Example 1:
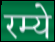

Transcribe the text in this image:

रम्ये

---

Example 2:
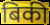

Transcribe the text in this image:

बिकी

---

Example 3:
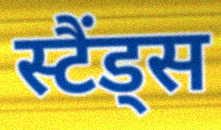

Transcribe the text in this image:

स्टैंड्स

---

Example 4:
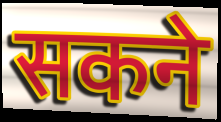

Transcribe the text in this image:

सकने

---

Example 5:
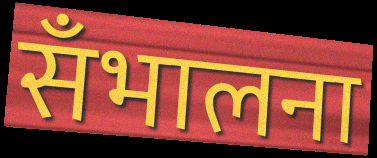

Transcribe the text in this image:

सँभालना